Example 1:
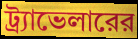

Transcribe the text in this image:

ট্র্যাভেলারের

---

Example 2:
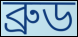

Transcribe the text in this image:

ব্রুড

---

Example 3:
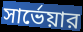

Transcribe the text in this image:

সার্ভেয়ার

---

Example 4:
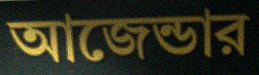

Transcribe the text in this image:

আজেন্ডার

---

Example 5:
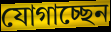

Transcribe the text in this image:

যোগাচ্ছেন